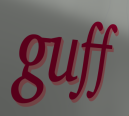
guff